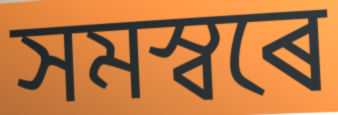
সমস্বৰে